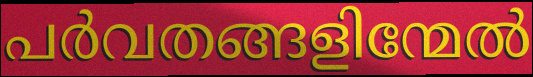
പർവതങ്ങളിന്മേൽ